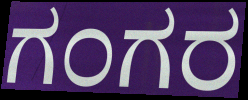
ಗಂಗರ